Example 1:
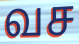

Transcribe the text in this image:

வச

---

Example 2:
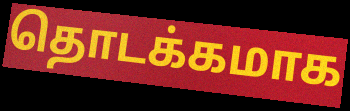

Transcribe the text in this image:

தொடக்கமாக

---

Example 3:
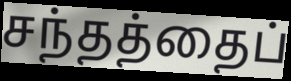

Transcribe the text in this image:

சந்தத்தைப்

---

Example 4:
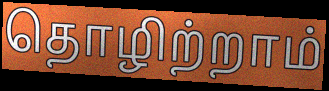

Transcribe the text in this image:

தொழிற்றாம்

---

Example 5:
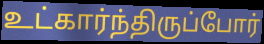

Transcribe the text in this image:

உட்கார்ந்திருப்போர்